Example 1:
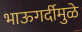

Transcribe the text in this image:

भाऊगर्दीमुळे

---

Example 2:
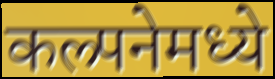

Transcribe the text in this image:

कल्पनेमध्ये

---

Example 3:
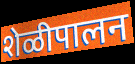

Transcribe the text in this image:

शेळीपालन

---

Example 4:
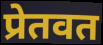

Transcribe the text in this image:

प्रेतवत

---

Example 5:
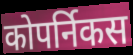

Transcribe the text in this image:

कोपर्निकस